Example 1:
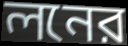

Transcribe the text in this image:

লনের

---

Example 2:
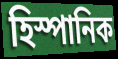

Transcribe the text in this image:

হিস্পানিক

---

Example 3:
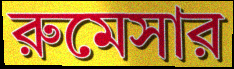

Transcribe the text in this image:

রুমেসার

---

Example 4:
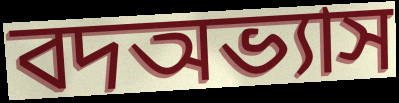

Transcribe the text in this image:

বদঅভ্যাস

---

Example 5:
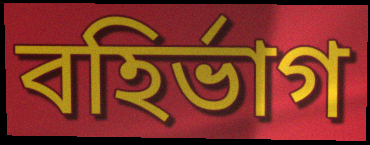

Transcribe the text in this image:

বহির্ভাগ